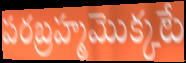
పరబ్రహ్మమొక్కటే